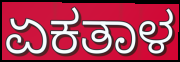
ಏಕತಾಳ